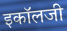
इकॉलजी